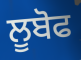
ਲੂਬੋਫ